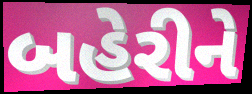
બહેરીને